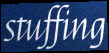
stuffing